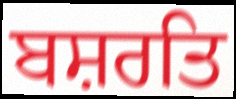
ਬਸ਼ਰਤਿ